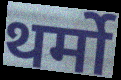
थर्मो